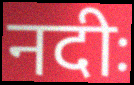
नदीः